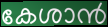
കേശാൻ